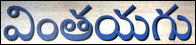
వింతయగు